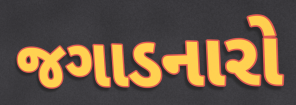
જગાડનારો